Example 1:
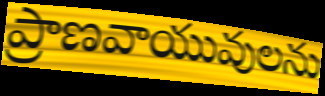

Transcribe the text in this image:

ప్రాణవాయువులను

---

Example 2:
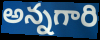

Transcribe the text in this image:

అన్నగారి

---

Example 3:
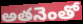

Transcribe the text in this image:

అతనెంతో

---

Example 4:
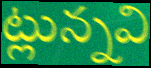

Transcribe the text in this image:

ట్లున్నవి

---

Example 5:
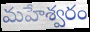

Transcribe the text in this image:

మహేశ్వరం